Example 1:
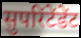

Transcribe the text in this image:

सुपरिंटेंडेंट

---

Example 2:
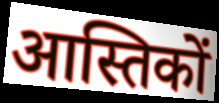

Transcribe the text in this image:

आस्तिकों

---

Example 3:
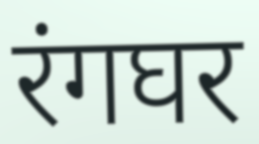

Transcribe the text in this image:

रंगघर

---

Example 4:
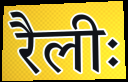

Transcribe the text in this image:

रैलीः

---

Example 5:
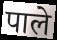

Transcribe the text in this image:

पाले